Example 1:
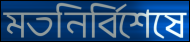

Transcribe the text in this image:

মতনির্বিশেষে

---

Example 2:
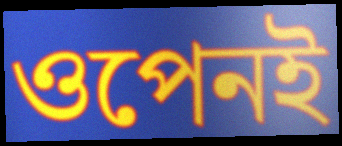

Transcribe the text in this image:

ওপেনই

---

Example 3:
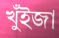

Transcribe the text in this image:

খুঁইজা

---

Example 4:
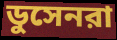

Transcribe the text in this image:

ডুসেনরা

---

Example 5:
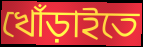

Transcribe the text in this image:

খোঁড়াইতে